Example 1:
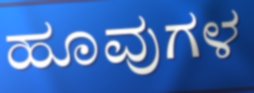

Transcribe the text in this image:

ಹೂವುಗಳ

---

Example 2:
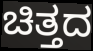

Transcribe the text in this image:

ಚಿತ್ತದ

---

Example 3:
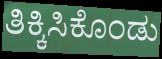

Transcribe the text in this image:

ತಿಕ್ಕಿಸಿಕೊಂಡು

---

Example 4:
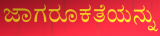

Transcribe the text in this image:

ಜಾಗರೂಕತೆಯನ್ನು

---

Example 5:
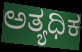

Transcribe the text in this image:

ಅತ್ಯಧಿಕ